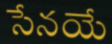
సేనయే